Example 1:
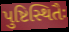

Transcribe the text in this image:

પુષ્ટિસ્થિતૈઃ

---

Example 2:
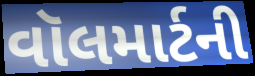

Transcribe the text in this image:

વૉલમાર્ટની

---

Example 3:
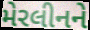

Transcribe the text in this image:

મેરલીનને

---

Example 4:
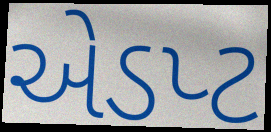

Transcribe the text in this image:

એડપ્ટ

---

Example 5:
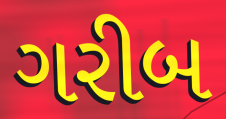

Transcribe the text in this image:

ગરીબ